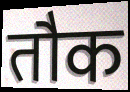
तौक